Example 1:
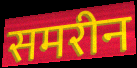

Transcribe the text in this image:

समरीन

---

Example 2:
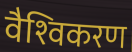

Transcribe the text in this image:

वैश्विकरण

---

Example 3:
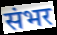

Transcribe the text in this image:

संभर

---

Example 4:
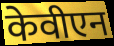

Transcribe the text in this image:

केवीएन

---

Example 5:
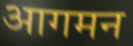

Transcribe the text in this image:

आगमन